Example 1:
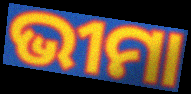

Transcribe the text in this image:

ଭୀମା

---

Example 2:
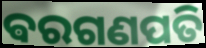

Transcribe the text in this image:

ଵରଗଣପତି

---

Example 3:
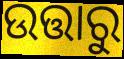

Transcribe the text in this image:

ଉତ୍ତାରୁ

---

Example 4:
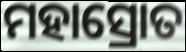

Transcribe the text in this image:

ମହାସ୍ରୋତ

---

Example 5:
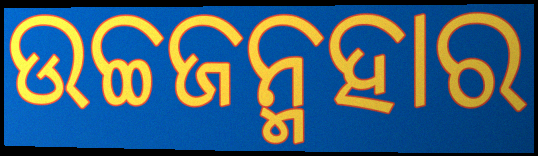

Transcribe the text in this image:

ଉଚ୍ଚଜନ୍ମହାର